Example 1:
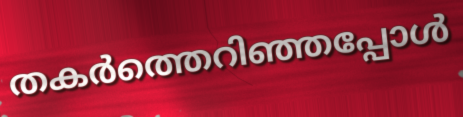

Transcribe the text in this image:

തകർത്തെറിഞ്ഞപ്പോൾ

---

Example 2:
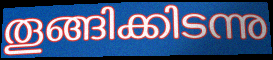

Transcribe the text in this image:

തൂങ്ങിക്കിടന്നു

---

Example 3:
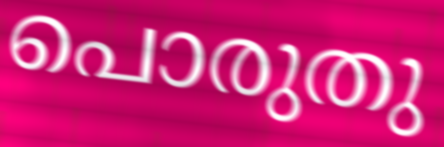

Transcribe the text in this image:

പൊരുതു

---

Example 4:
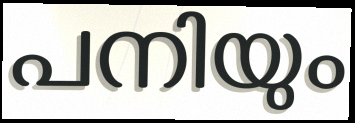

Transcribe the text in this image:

പനിയും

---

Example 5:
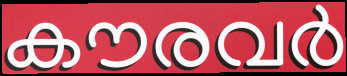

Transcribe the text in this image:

കൗരവർ